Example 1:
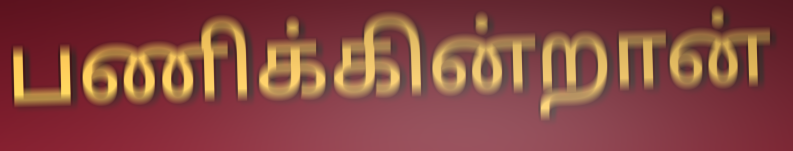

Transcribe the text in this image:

பணிக்கின்றான்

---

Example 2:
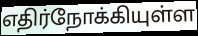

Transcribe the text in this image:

எதிர்நோக்கியுள்ள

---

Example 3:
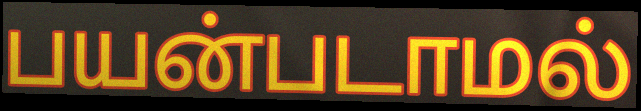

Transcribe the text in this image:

பயன்படாமல்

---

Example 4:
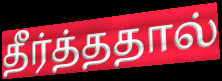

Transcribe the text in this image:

தீர்த்ததால்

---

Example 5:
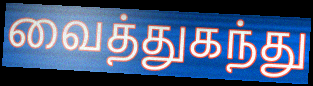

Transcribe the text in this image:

வைத்துகந்து